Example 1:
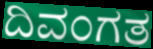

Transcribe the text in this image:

ದಿವಂಗತ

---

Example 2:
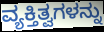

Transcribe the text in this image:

ವ್ಯಕ್ತಿತ್ವಗಳನ್ನು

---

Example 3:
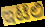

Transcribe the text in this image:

ಇಟೆಲಿ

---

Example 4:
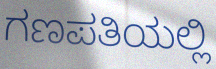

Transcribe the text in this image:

ಗಣಪತಿಯಲ್ಲಿ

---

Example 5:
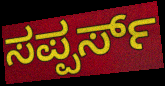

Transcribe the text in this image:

ಸಪ್ಪರ್ಸ್